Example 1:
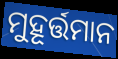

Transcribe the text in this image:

ମୁହୂର୍ତ୍ତମାନ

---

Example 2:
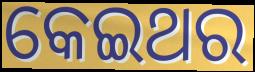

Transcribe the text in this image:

କେଇଥର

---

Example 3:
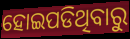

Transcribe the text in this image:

ହୋଇପଡିଥିବାରୁ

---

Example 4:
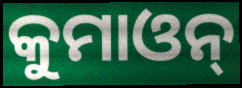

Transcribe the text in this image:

କୁମାଓନ୍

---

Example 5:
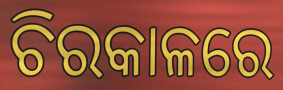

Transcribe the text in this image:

ଚିରକାଳରେ